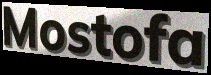
Mostofa